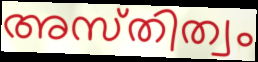
അസ്‌തിത്വം